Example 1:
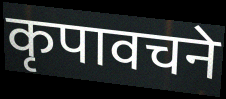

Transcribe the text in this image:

कृपावचने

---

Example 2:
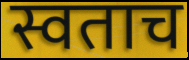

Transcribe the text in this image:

स्वताच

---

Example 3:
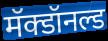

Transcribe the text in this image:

मॅक्डॉनल्ड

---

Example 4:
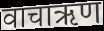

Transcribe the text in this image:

वाचाऋण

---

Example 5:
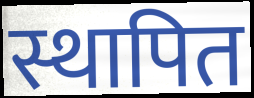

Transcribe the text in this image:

स्थापित